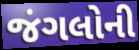
જંગલોની